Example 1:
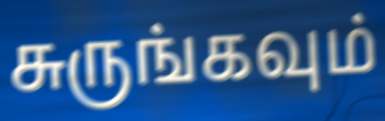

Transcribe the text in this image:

சுருங்கவும்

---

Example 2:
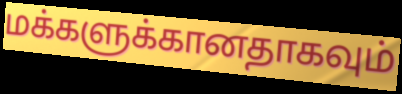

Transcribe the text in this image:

மக்களுக்கானதாகவும்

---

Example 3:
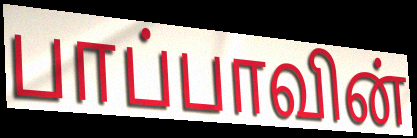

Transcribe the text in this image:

பாப்பாவின்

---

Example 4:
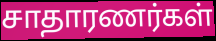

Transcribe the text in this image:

சாதாரணர்கள்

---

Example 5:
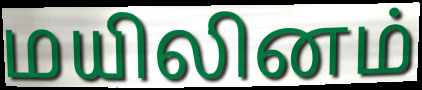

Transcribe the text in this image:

மயிலினம்